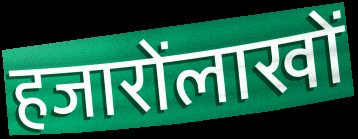
हजारोंलाखों